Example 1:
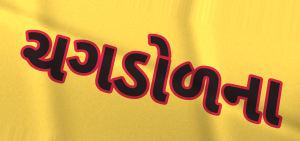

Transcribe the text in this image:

ચગડોળના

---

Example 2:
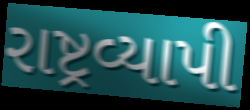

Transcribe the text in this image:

રાષ્ટ્રવ્યાપી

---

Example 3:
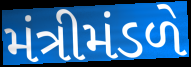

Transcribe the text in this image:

મંત્રીમંડળે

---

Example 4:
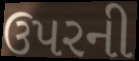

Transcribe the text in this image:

ઉપરની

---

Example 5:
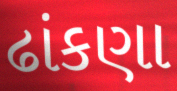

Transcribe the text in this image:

ઢાંકણા